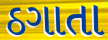
ઠગાતા